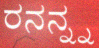
ರನನ್ನ್ನ